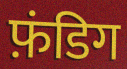
फ़ंडिग